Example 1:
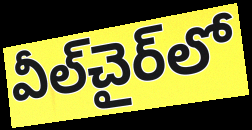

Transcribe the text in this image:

వీల్‌చైర్‌లో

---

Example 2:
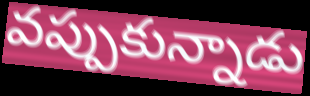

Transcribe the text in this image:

వప్పుకున్నాడు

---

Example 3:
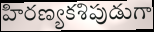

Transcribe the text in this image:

హిరణ్యకశిపుడుగా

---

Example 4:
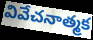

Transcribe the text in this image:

వివేచనాత్మక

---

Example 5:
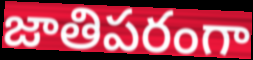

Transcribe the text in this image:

జాతిపరంగా